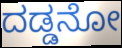
ದಡ್ಡನೋ